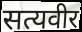
सत्यवीर